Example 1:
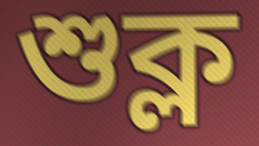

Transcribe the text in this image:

শুক্ল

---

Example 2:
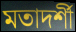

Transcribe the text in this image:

মতাদর্শী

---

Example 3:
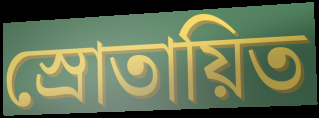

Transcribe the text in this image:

স্রোতায়িত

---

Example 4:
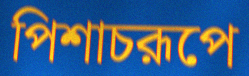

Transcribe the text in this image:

পিশাচরূপে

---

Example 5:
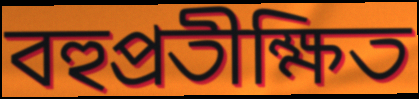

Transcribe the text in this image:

বহুপ্রতীক্ষিত